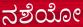
ನಶೆಯೋ